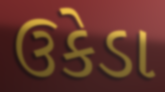
ઉકેડા